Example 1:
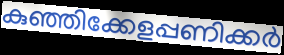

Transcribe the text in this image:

കുഞ്ഞിക്കേളപ്പണിക്കർ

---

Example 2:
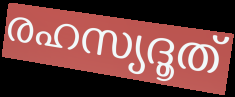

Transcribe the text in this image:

രഹസ്യദൂത്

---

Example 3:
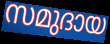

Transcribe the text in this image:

സമുദായ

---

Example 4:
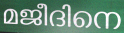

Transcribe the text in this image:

മജീദിനെ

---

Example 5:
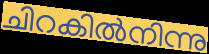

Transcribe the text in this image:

ചിറകിൽനിന്നു